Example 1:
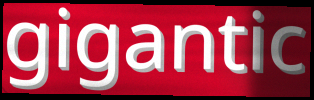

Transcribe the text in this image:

gigantic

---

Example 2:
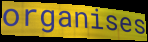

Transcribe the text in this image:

organises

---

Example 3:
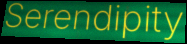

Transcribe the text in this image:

Serendipity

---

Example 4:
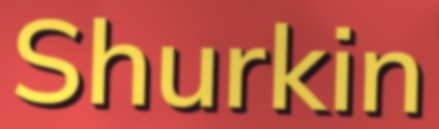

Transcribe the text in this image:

Shurkin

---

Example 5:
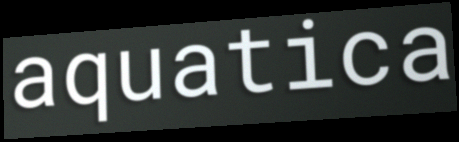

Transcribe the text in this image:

aquatica